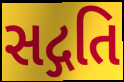
સદ્ગતિ